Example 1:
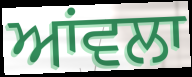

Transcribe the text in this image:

ਆਂਵਲਾ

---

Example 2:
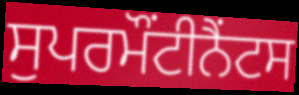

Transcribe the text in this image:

ਸੁਪਰਮੌਂਟੀਨੈਂਟਸ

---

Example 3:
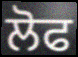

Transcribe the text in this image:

ਲੋਫ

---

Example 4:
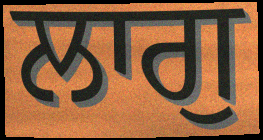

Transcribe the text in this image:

ਲਾਗੁ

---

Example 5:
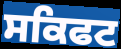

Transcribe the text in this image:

ਸਕਿਫਟ